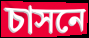
চাসনে